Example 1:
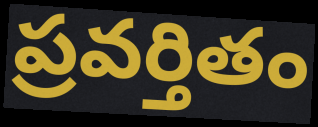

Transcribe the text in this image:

ప్రవర్తితం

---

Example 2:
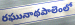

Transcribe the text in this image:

రఘునాథపాలెంలో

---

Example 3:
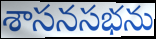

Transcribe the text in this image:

శాసనసభను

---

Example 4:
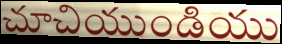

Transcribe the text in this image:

చూచియుండియు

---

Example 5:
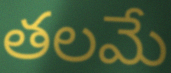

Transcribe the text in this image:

తలమే